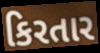
કિરતાર